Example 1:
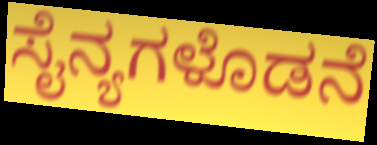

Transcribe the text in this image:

ಸೈನ್ಯಗಳೊಡನೆ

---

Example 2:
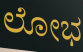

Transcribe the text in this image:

ಲೋಭ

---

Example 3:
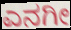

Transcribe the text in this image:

ಎನಗೀ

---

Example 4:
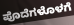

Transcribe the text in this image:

ಪೊದೆಗಳೊಳಗೆ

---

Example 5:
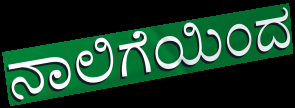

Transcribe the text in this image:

ನಾಲಿಗೆಯಿಂದ